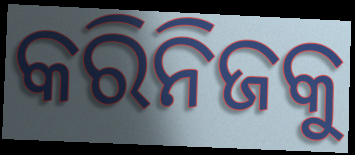
କରିନିଜକୁ